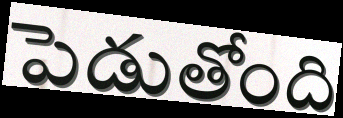
పెడుతోంది